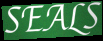
SEALS